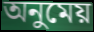
অনুমেয়